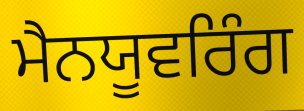
ਮੈਨਯੂਵਰਿੰਗ